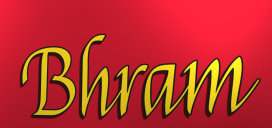
Bhram